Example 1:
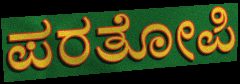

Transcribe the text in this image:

ಪರತೋಪಿ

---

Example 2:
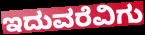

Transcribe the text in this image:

ಇದುವರೆವಿಗು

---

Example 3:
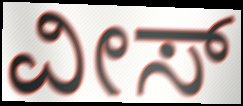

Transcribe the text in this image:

ವೀಸ್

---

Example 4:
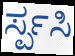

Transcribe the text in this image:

ರ್ಸ್ಪಸಿ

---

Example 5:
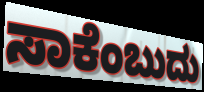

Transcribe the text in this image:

ಸಾಕೆಂಬುದು